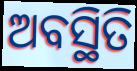
ଅବସ୍ଥିତି